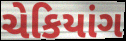
ચેકિયાંગ